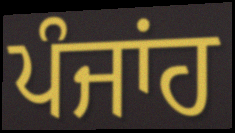
ਪੰਜਾਂਹ